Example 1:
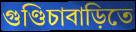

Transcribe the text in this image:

গুণ্ডিচাবাড়িতে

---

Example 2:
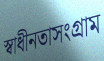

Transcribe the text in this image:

স্বাধীনতাসংগ্রাম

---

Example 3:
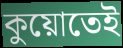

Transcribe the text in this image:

কুয়োতেই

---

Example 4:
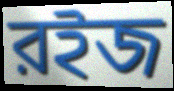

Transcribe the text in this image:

রইজ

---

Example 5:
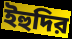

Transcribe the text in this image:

ইহুদির